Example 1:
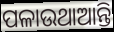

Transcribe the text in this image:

ପଳାଉଥାଆନ୍ତି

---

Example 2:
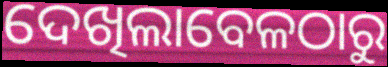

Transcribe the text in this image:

ଦେଖିଲାବେଳଠାରୁ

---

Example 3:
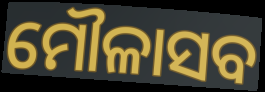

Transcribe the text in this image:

ମୌଳାସବ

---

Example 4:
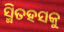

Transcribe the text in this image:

ସ୍ମିତହସକୁ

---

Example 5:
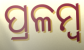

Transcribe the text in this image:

ପ୍ରଳମ୍ବ